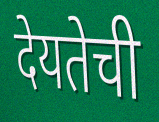
देयतेची